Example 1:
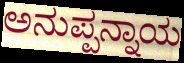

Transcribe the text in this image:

ಅನುಪ್ಪನ್ನಾಯ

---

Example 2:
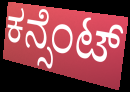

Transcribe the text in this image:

ಕನ್ಸೆಂಟ್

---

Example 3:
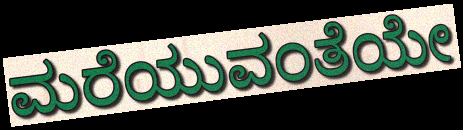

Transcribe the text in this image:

ಮರೆಯುವಂತೆಯೇ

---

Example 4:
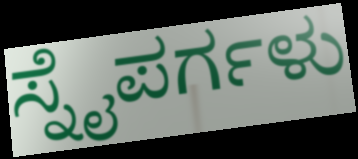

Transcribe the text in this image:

ಸ್ನೈಪರ್ಗಳು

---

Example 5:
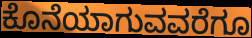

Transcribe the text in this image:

ಕೊನೆಯಾಗುವವರೆಗೂ